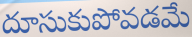
దూసుకుపోవడమే